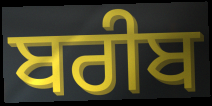
ਬਰੀਬ